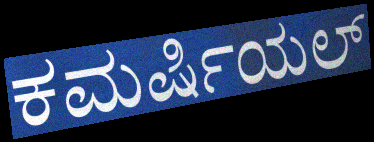
ಕಮರ್ಷಿಯಲ್